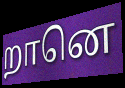
றானெ